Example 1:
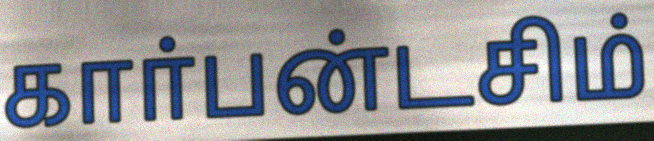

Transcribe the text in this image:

கார்பன்டசிம்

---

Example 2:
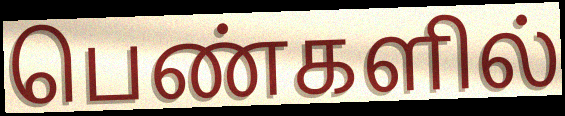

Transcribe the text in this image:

பெண்களில்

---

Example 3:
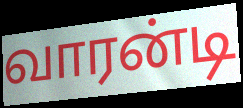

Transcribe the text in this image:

வாரன்டி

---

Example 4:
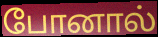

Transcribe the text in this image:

போனால்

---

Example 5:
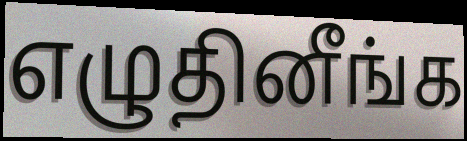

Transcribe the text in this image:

எழுதினீங்க